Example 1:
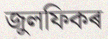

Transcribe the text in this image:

জুলফিকৰ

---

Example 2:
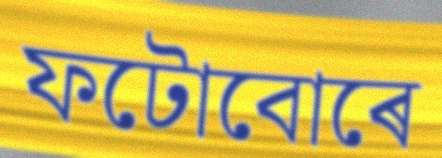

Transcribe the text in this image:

ফটোবোৰে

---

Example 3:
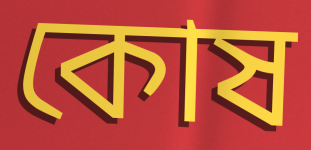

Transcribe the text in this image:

কোষ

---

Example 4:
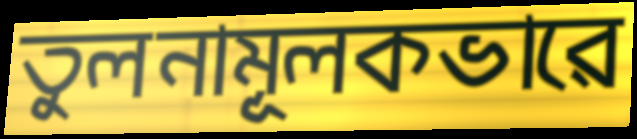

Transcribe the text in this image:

তুলনামূলকভাৱে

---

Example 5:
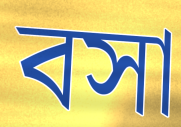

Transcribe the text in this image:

বসা